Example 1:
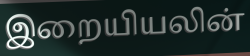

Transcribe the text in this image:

இறையியலின்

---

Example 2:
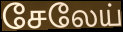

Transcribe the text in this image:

சேலேய்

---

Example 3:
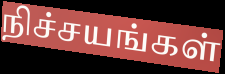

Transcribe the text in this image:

நிச்சயங்கள்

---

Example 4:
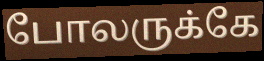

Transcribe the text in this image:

போலருக்கே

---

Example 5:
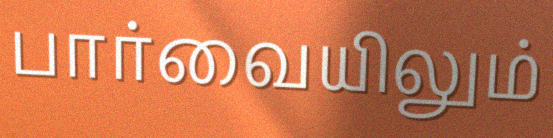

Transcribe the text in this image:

பார்வையிலும்